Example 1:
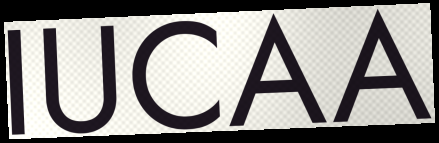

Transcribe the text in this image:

IUCAA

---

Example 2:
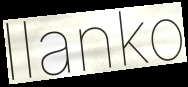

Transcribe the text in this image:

Ilanko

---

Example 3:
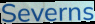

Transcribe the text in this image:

Severns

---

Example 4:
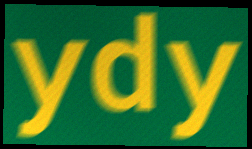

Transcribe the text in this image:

ydy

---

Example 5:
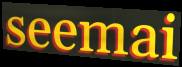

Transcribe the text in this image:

seemai